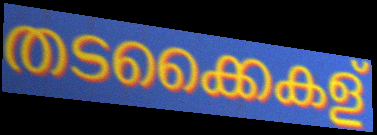
തടക്കൈകള്